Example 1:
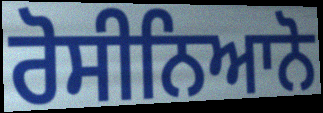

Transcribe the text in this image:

ਰੋਸੀਨਿਆਨੋ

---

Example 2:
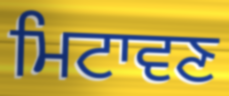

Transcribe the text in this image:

ਮਿਟਾਵਣ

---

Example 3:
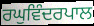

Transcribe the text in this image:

ਰਘੁਵਿੰਦਰਪਾਲ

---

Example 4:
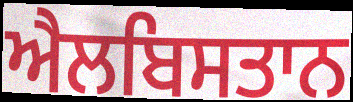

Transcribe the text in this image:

ਐਲਬਿਸਤਾਨ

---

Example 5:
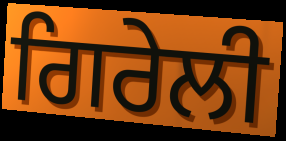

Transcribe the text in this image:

ਗਿਰੇਲੀ